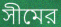
সীমের